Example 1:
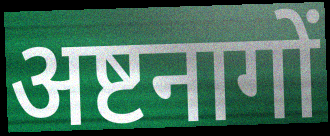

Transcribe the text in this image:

अष्टनागों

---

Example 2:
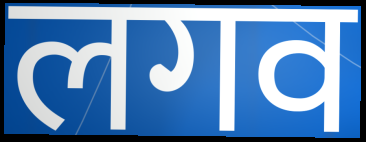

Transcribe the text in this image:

लगव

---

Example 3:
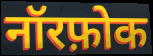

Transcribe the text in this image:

नॉरफ़ोक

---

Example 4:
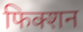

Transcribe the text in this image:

फिक्शन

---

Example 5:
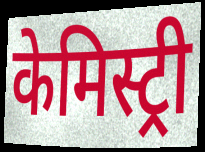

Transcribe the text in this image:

केमिस्ट्री